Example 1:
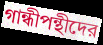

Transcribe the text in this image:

গান্ধীপন্থীদের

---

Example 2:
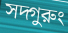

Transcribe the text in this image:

সদ্গুরুং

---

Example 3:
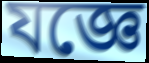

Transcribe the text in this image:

যজ্ঞে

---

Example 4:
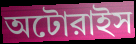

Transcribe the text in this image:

অটোরাইস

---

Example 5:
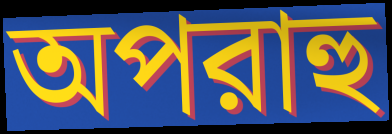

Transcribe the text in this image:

অপরাহু